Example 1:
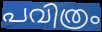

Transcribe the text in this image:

പവിത്രം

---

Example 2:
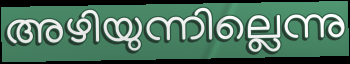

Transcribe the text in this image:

അഴിയുന്നില്ലെന്നു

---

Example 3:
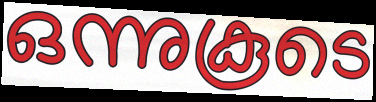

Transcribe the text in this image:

ഒന്നുകൂടെ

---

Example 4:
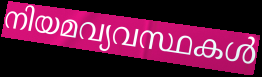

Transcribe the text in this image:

നിയമവ്യവസ്ഥകൾ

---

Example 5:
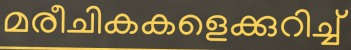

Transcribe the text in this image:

മരീചികകളെക്കുറിച്ച്